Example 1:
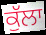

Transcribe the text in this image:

ਕੁੱਲਾ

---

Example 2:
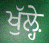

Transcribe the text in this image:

ਖੁੱਲ਼੍ਹੇ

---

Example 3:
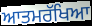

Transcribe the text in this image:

ਆਤਮਰੱਖਿਆ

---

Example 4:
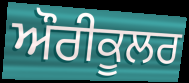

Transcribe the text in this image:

ਔਰੀਕੂਲਰ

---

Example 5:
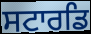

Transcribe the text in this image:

ਸਟਾਰਡਿ